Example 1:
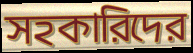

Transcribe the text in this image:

সহকারিদের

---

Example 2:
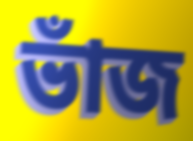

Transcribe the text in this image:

ভাঁজ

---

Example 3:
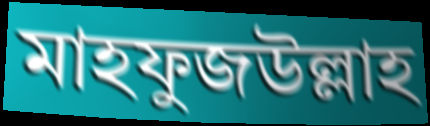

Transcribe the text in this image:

মাহফুজউল্লাহ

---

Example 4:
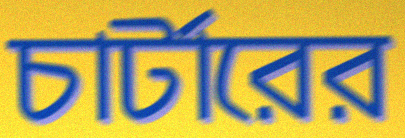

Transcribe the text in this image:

চার্টারের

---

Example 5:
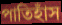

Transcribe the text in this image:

পাতিহাঁস